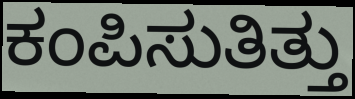
ಕಂಪಿಸುತಿತ್ತು